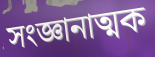
সংজ্ঞানাত্মক